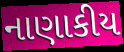
નાણાકીય